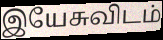
இயேசுவிடம்